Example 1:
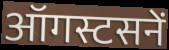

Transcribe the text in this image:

ऑगस्टसनें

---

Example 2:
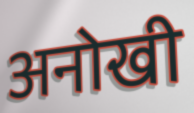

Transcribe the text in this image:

अनोखी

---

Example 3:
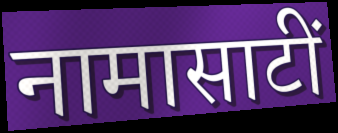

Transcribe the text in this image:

नामासाटीं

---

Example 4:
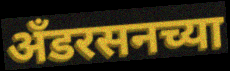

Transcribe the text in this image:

अँडरसनच्या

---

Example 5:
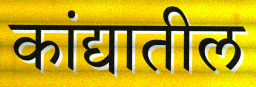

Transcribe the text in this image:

कांद्यातील